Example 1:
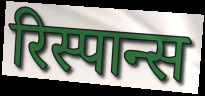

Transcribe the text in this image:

रिस्पान्स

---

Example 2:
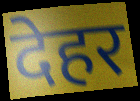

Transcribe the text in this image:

देहर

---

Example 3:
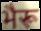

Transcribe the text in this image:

भैरू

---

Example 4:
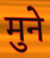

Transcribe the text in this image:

मुने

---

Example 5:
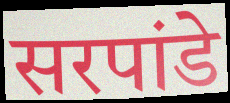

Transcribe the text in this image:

सरपांडे